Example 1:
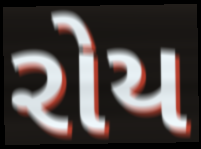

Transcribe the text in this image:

રોય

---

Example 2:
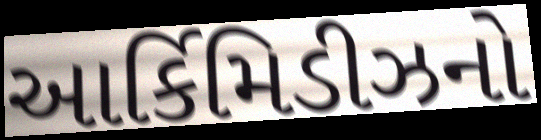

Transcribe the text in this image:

આર્કિમિડીઝનો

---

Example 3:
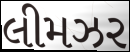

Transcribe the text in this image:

લીમઝર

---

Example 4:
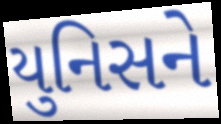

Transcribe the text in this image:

યુનિસને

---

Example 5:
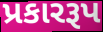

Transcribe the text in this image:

પ્રકારરૂપ